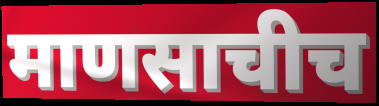
माणसाचीच